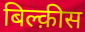
बिल्क़ीस